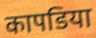
कापडिया